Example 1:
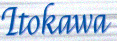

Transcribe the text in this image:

Itokawa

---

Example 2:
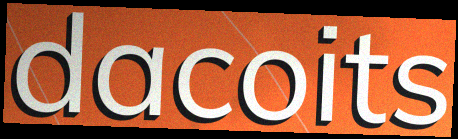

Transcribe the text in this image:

dacoits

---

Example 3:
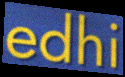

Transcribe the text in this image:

edhi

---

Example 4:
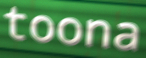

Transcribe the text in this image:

toona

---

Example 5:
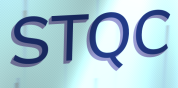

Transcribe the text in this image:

STQC